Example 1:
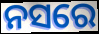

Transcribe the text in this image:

ନସରେ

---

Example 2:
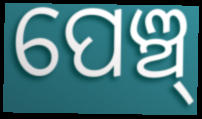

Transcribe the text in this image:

ପେଞ୍ଚ୍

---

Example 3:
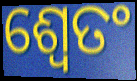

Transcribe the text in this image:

ଶ୍ଵେତଂ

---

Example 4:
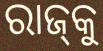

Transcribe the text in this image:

ରାଜ୍‍କୁ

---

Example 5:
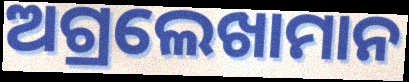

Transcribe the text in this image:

ଅଗ୍ରଲେଖାମାନ